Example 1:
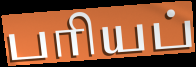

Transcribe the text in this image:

பரியப்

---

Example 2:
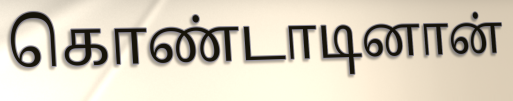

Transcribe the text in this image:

கொண்டாடினான்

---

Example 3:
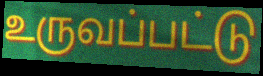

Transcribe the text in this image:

உருவப்பட்டு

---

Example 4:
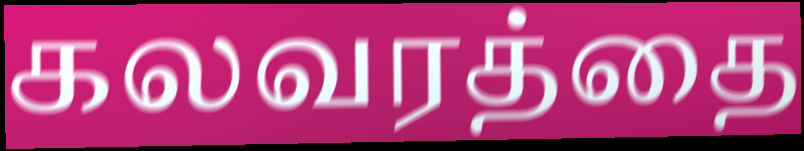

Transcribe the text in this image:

கலவரத்தை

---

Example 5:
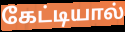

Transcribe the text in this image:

கேட்டியால்